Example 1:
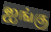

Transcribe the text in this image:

ஐங்கு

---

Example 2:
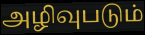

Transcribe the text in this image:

அழிவுபடும்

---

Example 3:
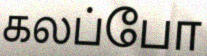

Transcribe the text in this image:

கலப்போ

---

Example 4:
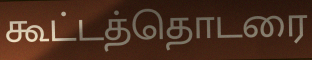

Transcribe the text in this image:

கூட்டத்தொடரை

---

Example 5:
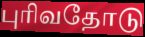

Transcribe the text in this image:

புரிவதோடு